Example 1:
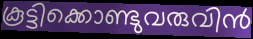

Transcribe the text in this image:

കൂട്ടിക്കൊണ്ടുവരുവിൻ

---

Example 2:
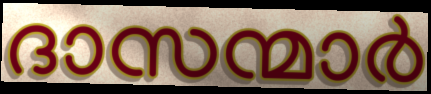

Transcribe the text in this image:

ദാസന്മാർ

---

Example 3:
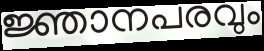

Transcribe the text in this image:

ജ്ഞാനപരവും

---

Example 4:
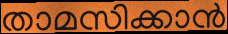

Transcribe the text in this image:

താമസിക്കാൻ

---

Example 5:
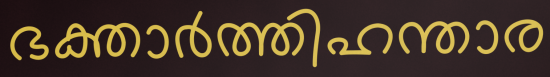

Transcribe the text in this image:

ഭക്താർത്തിഹന്താര